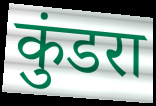
कुंडरा